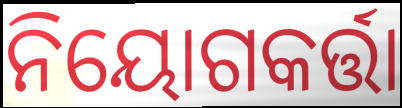
ନିୟୋଗକର୍ତ୍ତା